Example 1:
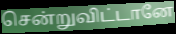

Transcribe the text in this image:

சென்றுவிட்டானே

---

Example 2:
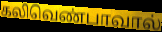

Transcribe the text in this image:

கலிவெண்பாவால்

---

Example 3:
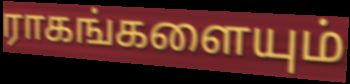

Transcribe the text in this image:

ராகங்களையும்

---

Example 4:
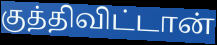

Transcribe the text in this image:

குத்திவிட்டான்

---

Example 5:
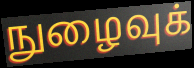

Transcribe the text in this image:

நுழைவுக்